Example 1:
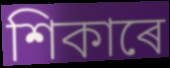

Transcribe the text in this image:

শিকাৰে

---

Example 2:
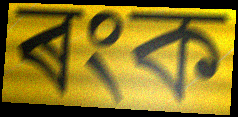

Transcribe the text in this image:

ৰংক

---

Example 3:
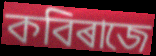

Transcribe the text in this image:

কবিৰাজে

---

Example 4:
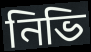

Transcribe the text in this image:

নিভি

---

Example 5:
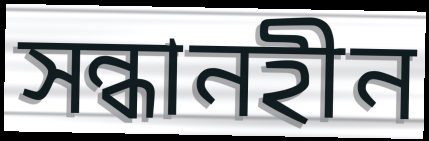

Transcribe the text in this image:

সন্ধানহীন